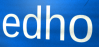
edho